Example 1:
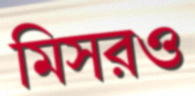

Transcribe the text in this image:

মিসরও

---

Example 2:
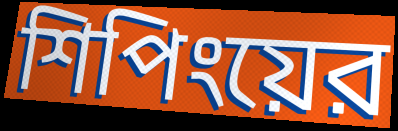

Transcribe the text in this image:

শিপিংয়ের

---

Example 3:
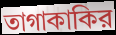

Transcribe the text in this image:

তাগাকাকির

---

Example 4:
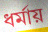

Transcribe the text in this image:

ধর্মায়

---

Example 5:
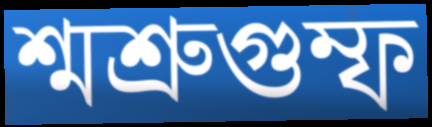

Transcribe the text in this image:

শ্মশ্রুগুম্ফ